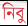
নিবু